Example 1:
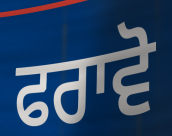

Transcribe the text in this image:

ਫਰਾਵੋ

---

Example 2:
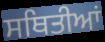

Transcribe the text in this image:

ਸਥਿਤੀਆਂ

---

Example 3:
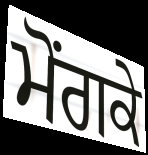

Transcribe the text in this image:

ਮੋਂਗਕੇ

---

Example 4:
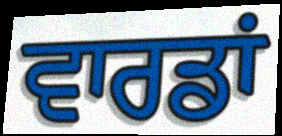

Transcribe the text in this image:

ਵਾਰਡਾਂ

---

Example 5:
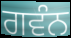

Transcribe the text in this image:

ਗਵੰਨ